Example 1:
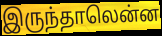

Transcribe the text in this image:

இருந்தாலென்ன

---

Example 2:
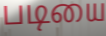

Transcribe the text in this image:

படியை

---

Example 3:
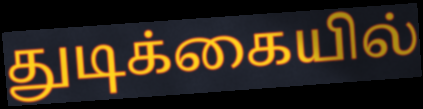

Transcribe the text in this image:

துடிக்கையில்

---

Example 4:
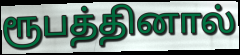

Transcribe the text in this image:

ரூபத்தினால்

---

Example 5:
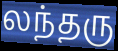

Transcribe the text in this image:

லந்தரு